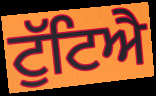
ਟੁੱਟਿਐ